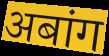
अबांग